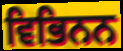
ਵਿਭਿਨਨ